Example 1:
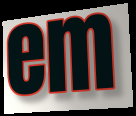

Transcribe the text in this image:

em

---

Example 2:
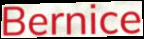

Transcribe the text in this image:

Bernice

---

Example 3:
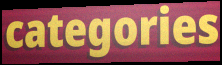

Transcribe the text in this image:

categories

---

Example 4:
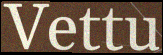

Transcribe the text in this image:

Vettu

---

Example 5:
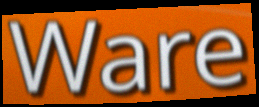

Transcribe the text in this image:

Ware